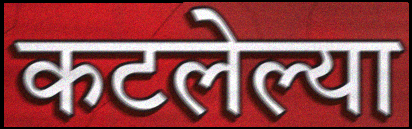
कटलेल्या